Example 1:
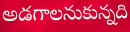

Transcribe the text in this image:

అడగాలనుకున్నది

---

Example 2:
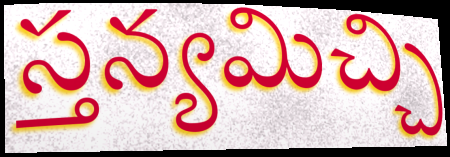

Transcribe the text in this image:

స్తన్యమిచ్చి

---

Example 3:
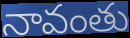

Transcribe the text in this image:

నావంతు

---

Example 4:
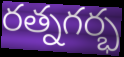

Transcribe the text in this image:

రత్నగర్భ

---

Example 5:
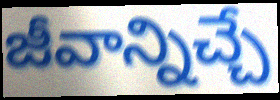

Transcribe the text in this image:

జీవాన్నిచ్చే